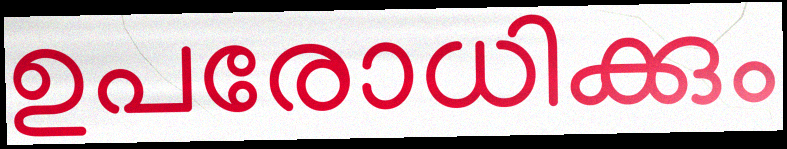
ഉപരോധിക്കും